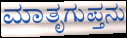
ಮಾತೃಗುಪ್ತನು